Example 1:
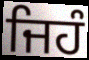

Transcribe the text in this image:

ਜਿਹੰ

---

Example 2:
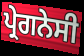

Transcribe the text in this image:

ਪ੍ਰੇਗਨੇਸੀ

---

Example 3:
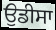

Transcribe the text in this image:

ਉਡੀਸਾ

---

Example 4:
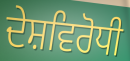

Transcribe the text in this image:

ਦੇਸ਼ਵਿਰੋਧੀ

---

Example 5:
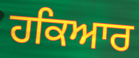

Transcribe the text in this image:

ਹਕਿਆਰ